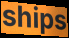
ships